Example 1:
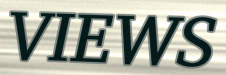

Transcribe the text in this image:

VIEWS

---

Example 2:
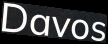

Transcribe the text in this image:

Davos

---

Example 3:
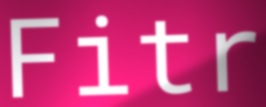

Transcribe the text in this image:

Fitr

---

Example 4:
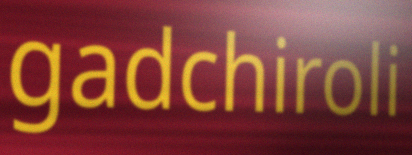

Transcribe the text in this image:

gadchiroli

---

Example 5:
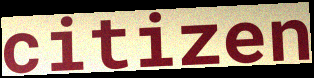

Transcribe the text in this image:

citizen